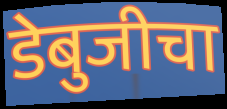
डेबुजीचा